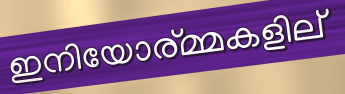
ഇനിയോര്മ്മകളില്